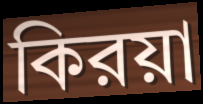
কিরয়া